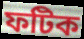
ফটিক